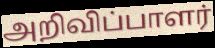
அறிவிப்பாளர்